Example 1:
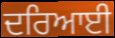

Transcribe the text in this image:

ਦਰਿਆਈ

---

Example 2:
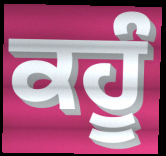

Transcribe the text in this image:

ਕਹੂੰ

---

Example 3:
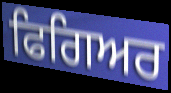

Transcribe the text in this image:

ਫਿਗਿਅਰ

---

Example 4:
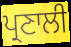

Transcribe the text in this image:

ਪ੍ਰਣਾਲੀ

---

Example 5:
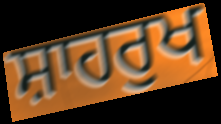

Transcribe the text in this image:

ਸ਼ਾਹਰੁਖ